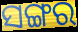
ସଙ୍ଗର